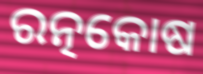
ରତ୍ନକୋଷ